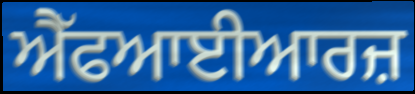
ਐੱਫਆਈਆਰਜ਼